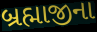
બ્રહ્માજીના